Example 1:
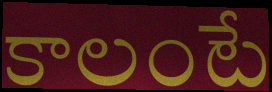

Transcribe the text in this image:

కాలంటే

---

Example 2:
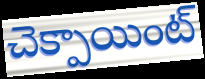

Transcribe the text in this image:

చెక్పాయింట్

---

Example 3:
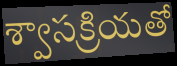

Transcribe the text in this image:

శ్వాసక్రియతో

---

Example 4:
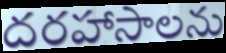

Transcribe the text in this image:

దరహాసాలను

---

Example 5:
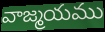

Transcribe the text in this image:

వాజ్మయము